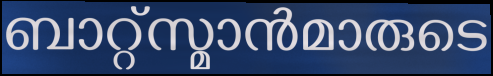
ബാറ്റ്സ്മാൻമാരുടെ